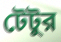
টেটুর